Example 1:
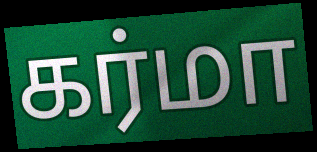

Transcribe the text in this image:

கர்மா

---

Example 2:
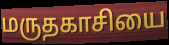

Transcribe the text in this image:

மருதகாசியை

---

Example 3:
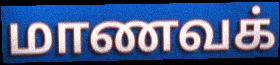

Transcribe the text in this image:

மாணவக்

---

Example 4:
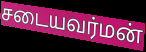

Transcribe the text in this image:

சடையவர்மன்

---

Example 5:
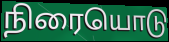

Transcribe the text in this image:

நிரையொடு